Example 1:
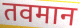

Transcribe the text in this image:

तवमान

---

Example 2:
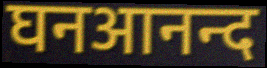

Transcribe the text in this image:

घनआनन्द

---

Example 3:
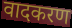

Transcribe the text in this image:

वादकरण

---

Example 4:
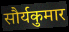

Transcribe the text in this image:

सौर्यकुमार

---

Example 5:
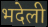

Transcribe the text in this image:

भदेली